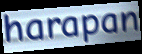
harapan